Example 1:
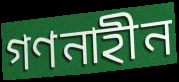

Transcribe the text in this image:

গণনাহীন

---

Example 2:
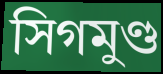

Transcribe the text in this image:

সিগমুণ্ড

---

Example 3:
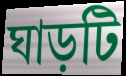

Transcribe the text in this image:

ঘাড়টি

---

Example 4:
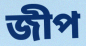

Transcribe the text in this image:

জীপ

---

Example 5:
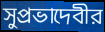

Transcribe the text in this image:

সুপ্রভাদেবীর